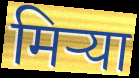
मिऱ्या